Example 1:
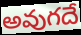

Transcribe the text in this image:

అవుగదే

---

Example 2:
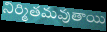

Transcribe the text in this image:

నిర్మితమవుతాయి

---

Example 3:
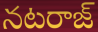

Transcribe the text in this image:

నటరాజ్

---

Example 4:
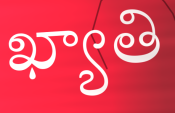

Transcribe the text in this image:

ఖ్యాతి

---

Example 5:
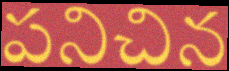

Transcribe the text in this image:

పనిచిన